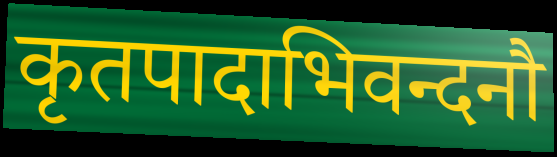
कृतपादाभिवन्दनौ